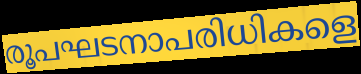
രൂപഘടനാപരിധികളെ